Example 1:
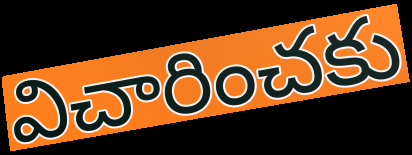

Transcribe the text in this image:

విచారించకు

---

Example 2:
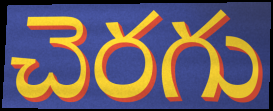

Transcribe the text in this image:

చెరగు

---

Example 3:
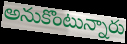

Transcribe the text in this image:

అనుకొంటున్నారు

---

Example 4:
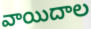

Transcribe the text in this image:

వాయిదాల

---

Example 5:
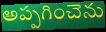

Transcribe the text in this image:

అప్పగించెను